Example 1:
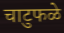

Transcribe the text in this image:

चाटुफळे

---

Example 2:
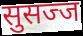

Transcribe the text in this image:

सुसज्ज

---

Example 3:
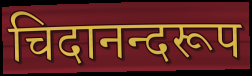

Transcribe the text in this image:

चिदानन्दरूप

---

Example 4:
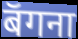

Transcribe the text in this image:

बॅगना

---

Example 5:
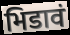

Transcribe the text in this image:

भिडावं